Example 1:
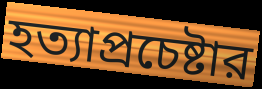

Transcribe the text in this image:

হত্যাপ্রচেষ্টার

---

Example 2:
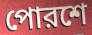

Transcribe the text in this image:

পোরশে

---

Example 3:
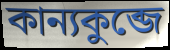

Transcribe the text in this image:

কান্যকুব্জে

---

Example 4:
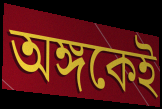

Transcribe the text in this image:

অঙ্গকেই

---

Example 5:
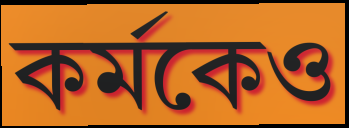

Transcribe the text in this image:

কর্মকেও